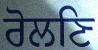
ਰੋਲਣਿ